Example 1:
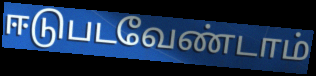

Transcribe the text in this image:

ஈடுபடவேண்டாம்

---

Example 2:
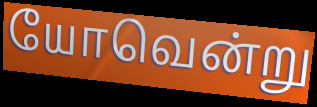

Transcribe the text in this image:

யோவென்று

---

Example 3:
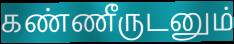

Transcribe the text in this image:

கண்ணீருடனும்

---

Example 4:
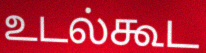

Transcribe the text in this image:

உடல்கூட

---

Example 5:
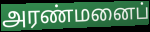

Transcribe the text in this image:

அரண்மனைப்